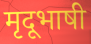
मृदूभाषी